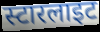
स्टारलाइट